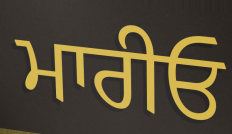
ਮਾਰੀਓ